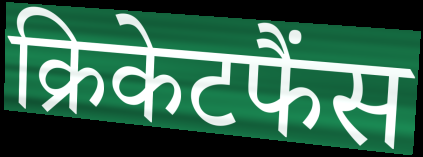
क्रिकेटफैंस